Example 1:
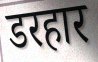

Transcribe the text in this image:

डरहार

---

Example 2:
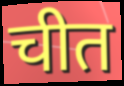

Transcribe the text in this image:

चीत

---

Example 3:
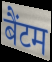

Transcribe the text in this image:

बैंटम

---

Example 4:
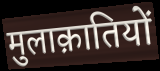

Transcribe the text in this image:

मुलाक़ातियों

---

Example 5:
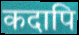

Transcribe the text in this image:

कदापि